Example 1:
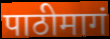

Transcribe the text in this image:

पाठीमागं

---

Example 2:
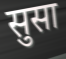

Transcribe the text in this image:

सुसा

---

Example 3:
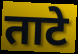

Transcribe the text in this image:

ताटे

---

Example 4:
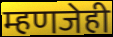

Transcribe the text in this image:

म्हणजेही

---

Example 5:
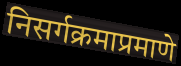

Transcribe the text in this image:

निसर्गक्रमाप्रमाणे